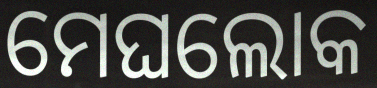
ମେଘଲୋକ